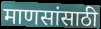
माणसांसाठी